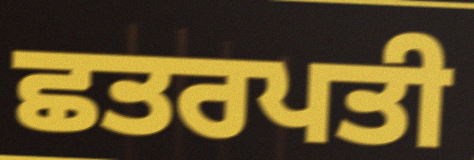
ਛਤਰਪਤੀ